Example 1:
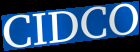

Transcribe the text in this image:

CIDCO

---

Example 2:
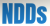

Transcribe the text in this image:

NDDs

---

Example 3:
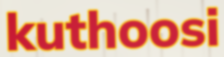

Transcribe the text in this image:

kuthoosi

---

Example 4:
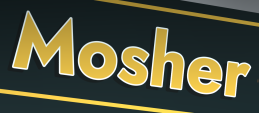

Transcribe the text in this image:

Mosher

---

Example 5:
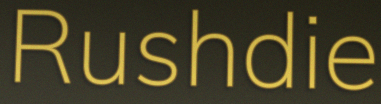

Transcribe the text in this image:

Rushdie